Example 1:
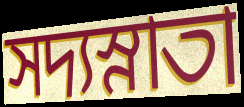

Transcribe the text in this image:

সদ্যস্নাতা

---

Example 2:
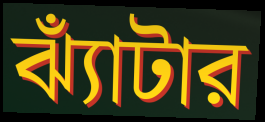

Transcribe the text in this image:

ঝ্যাঁটার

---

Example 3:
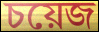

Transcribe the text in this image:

চয়েজ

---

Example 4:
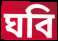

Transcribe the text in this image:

ঘবি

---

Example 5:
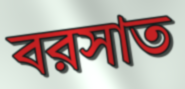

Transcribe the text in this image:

বরসাত